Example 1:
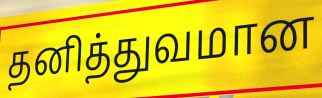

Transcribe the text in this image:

தனித்துவமான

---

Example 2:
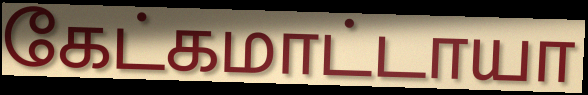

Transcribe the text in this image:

கேட்கமாட்டாயா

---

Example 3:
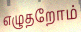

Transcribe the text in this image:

எழுதறோம்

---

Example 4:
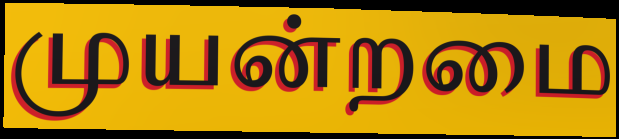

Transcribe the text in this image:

முயன்றமை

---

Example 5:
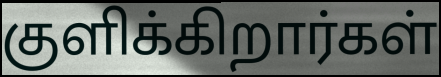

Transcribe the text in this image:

குளிக்கிறார்கள்